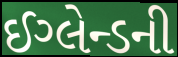
ઈગ્લેન્ડની